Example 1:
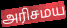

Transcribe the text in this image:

அரிசமய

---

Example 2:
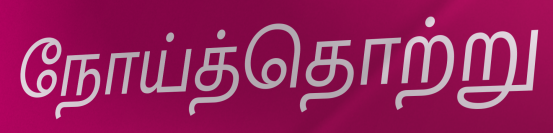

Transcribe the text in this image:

நோய்த்தொற்று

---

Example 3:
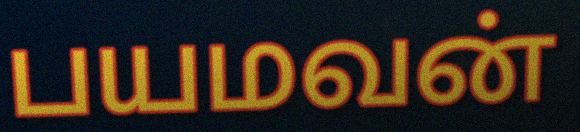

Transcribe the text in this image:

பயமவன்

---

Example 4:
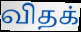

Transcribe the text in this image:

விதக்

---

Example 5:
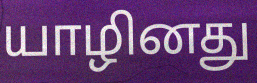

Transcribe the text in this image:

யாழினது